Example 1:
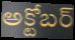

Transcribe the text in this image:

అక్టోబర్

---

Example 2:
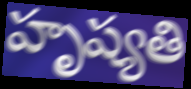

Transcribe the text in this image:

హృష్యతి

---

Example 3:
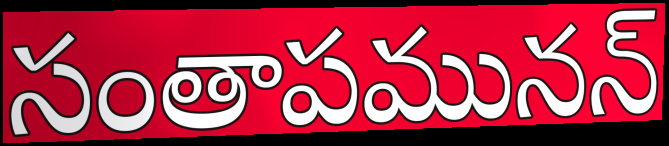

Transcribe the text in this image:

సంతాపమునన్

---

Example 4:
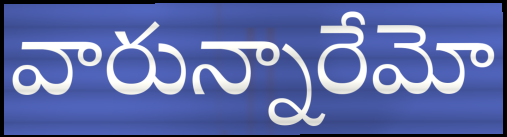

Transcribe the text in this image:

వారున్నారేమో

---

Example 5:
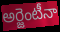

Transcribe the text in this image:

అర్జెంటీనా